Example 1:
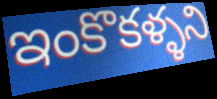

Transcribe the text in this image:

ఇంకొకళ్ళని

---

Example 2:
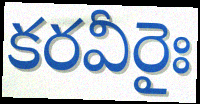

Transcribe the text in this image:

కరవీరైః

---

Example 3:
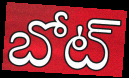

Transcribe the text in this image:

బోట్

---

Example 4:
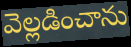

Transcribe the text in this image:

వెల్లడించాను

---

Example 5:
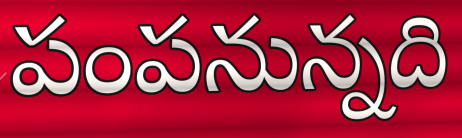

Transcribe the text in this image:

పంపనున్నది